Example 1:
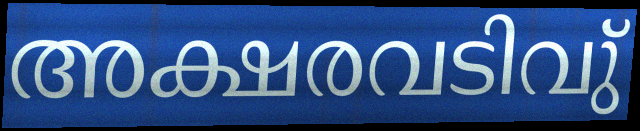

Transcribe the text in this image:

അക്ഷരവടിവു്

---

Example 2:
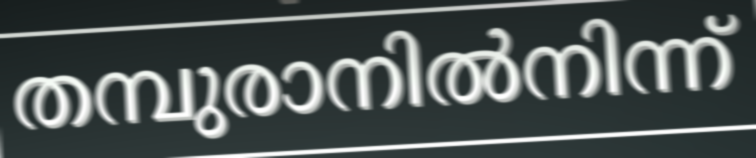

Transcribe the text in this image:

തമ്പുരാനിൽനിന്ന്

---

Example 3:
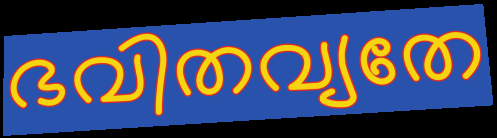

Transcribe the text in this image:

ഭവിതവ്യതേ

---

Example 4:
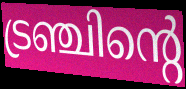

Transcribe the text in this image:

ട്രഞ്ചിന്റെ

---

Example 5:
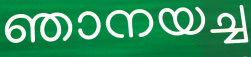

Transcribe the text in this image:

ഞാനയച്ച